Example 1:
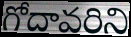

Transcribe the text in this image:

గోదావరిని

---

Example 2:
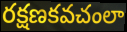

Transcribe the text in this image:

రక్షణకవచంలా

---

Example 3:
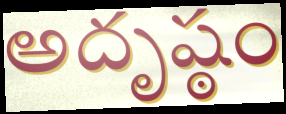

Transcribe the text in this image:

అదృష్ఠం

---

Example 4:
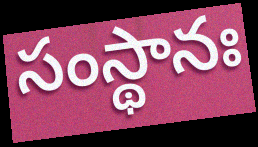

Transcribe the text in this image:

సంస్థానః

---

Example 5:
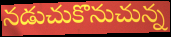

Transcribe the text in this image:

నడుచుకొనుచున్న